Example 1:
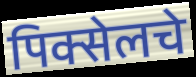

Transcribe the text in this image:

पिक्सेलचे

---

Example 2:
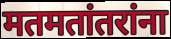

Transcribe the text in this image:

मतमतांतरांना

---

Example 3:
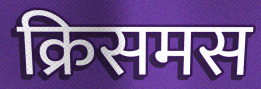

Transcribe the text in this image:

क्रिसमस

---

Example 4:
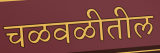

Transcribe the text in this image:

चळवळीतील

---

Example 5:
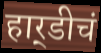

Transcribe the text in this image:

हार्डीचं